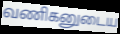
வணிகனுடைய